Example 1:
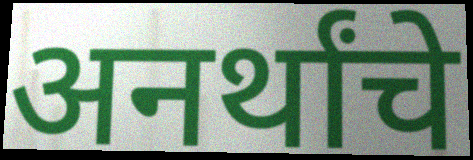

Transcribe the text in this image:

अनर्थांचे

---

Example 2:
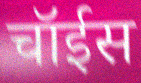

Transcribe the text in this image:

चॉईस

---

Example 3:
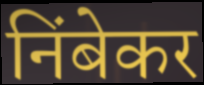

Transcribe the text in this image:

निंबेकर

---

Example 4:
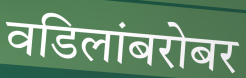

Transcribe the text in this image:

वडिलांबरोबर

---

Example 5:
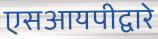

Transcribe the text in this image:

एसआयपीद्वारे